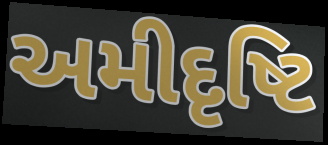
અમીદૃષ્ટિ